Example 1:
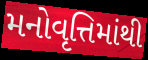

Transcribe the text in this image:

મનોવૃત્તિમાંથી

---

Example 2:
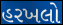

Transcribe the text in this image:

હરખલો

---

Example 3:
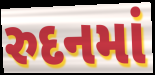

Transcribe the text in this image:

રુદનમાં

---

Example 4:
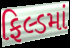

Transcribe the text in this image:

ફિલ્ડમાં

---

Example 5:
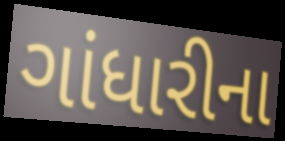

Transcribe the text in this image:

ગાંધારીના